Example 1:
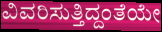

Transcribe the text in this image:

ವಿವರಿಸುತ್ತಿದ್ದಂತೆಯೇ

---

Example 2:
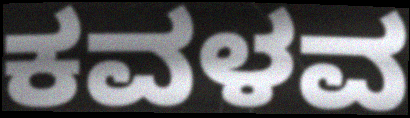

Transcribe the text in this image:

ಕವಳವ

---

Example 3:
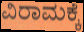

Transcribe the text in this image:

ವಿರಾಮಕ್ಕೆ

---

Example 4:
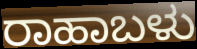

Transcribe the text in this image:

ರಾಹಾಬಳು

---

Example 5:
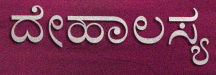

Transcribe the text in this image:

ದೇಹಾಲಸ್ಯ